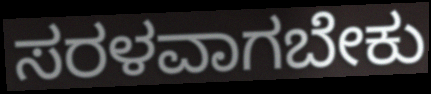
ಸರಳವಾಗಬೇಕು